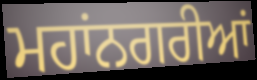
ਮਹਾਂਨਗਰੀਆਂ